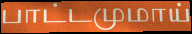
பாட்டமுமாய்